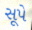
સૂપે